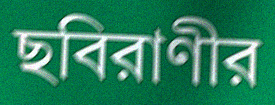
ছবিরাণীর